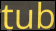
tub